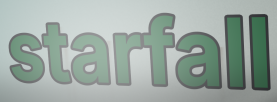
starfall